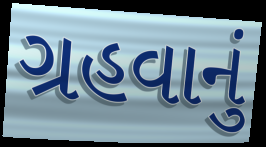
ગ્રહવાનું